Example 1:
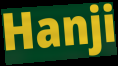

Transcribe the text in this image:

Hanji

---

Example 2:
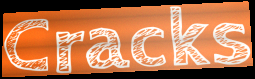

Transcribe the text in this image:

Cracks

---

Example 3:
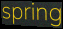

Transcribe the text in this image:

spring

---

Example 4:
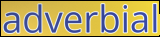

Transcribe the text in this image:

adverbial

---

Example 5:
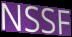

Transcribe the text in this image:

NSSF